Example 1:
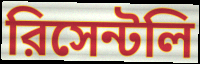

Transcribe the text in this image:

রিসেন্টলি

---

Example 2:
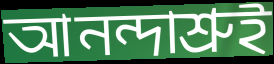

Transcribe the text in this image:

আনন্দাশ্রুই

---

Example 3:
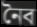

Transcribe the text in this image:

নৈব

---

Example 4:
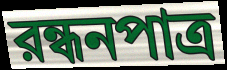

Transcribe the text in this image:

রন্ধনপাত্র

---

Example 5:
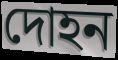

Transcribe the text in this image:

দোহন